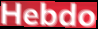
Hebdo